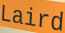
Laird